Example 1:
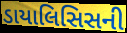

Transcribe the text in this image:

ડાયાલિસિસની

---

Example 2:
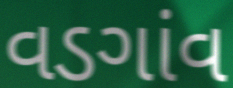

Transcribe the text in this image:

વડગાંવ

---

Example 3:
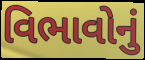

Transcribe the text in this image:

વિભાવોનું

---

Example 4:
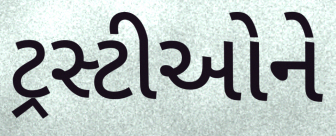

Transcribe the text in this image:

ટ્રસ્ટીઓને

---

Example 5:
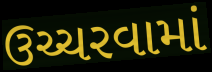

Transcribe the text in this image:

ઉચ્ચરવામાં